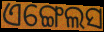
ଏଙ୍ଗେଲସ